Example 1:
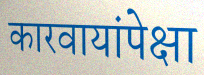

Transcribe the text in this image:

कारवायांपेक्षा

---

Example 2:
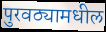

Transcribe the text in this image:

पुरवठ्यामधील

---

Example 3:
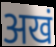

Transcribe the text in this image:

अखं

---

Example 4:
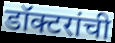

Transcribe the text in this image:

डॉक्टरांची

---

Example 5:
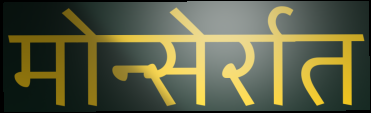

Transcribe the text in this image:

मोन्सेर्रात